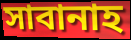
সাবানাহ